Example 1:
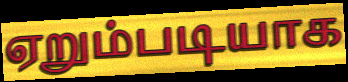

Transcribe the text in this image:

ஏறும்படியாக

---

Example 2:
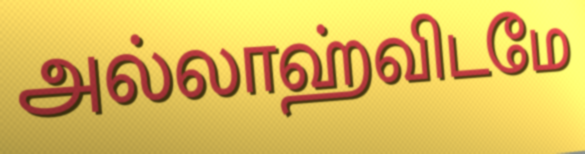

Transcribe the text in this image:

அல்லாஹ்விடமே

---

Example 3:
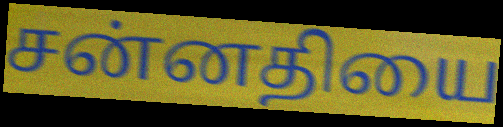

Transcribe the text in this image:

சன்னதியை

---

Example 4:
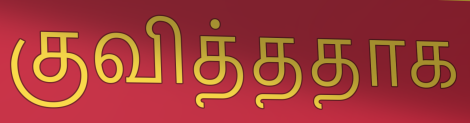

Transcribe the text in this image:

குவித்ததாக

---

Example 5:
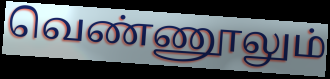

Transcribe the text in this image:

வெண்ணூலும்